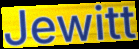
Jewitt